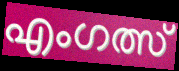
എംഗത്സ്